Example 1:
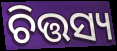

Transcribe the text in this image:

ଚିତ୍ତସ୍ୟ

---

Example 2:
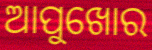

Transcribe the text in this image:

ଆପୁଖୋର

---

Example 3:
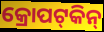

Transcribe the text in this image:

କ୍ରୋପଟ୍‍କିନ୍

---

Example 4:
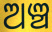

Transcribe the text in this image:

ଅଞ୍ଚ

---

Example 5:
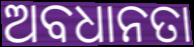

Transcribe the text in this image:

ଅବଧାନତା